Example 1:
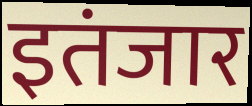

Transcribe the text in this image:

इतंजार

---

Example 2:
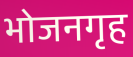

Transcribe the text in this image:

भोजनगृह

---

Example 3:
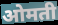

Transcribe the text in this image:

ओमती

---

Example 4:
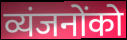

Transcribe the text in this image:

व्यंजनोंको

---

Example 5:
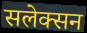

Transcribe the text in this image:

सलेक्सन